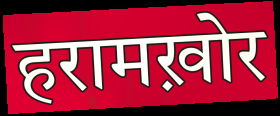
हरामख़ोर